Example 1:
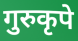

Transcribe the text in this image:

गुरुकृपे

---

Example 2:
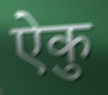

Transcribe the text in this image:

ऐकु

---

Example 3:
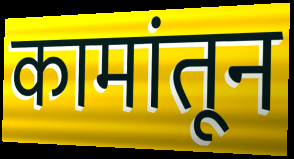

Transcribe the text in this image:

कामांतून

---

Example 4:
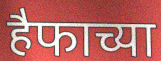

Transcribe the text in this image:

हैफाच्या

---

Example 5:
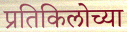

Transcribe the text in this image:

प्रतिकिलोच्या